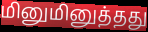
மினுமினுத்தது